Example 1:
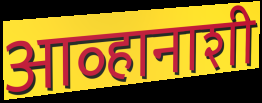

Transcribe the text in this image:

आव्हानाशी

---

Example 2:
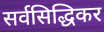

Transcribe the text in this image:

सर्वसिद्धिकर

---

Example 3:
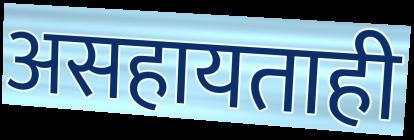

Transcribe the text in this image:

असहायताही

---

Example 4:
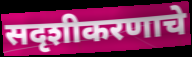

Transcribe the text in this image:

सदृशीकरणाचे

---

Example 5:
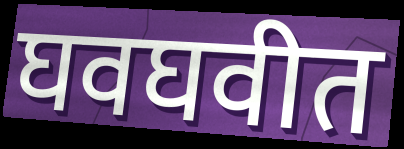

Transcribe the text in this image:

घवघवीत